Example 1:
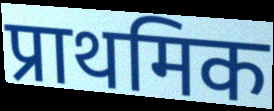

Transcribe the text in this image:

प्राथमिक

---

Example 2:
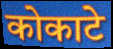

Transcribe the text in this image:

कोकाटे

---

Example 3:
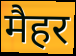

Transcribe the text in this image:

मैहर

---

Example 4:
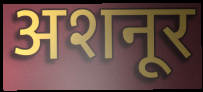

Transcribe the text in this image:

अशनूर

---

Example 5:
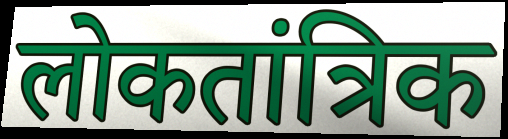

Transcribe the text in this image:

लोकतांत्रिक